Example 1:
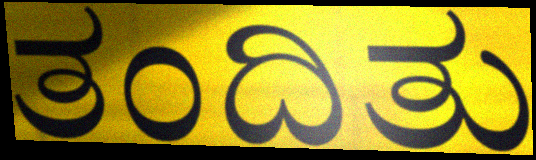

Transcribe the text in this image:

ತಂದಿತು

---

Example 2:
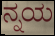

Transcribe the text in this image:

ನ್ನಯ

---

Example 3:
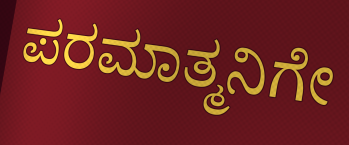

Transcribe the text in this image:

ಪರಮಾತ್ಮನಿಗೇ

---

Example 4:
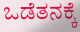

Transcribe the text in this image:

ಒಡೆತನಕ್ಕೆ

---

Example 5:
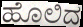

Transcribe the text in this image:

ಹೊಲಿದ